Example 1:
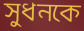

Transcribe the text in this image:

সুধনকে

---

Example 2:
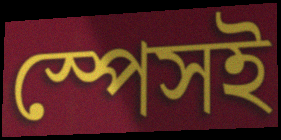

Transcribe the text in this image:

স্পেসই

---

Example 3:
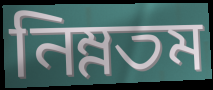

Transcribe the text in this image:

নিম্নতম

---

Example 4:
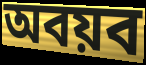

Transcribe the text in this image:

অবয়ব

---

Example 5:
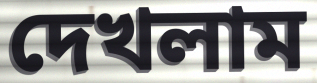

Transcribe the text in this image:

দেখলাম